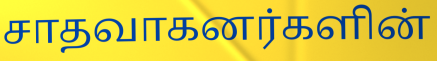
சாதவாகனர்களின்